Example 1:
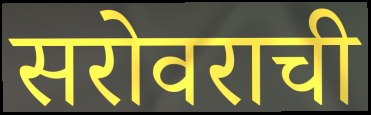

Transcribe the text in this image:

सरोवराची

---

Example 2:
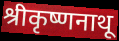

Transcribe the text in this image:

श्रीकृष्णनाथू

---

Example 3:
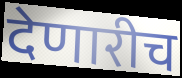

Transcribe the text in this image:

देणारीच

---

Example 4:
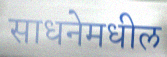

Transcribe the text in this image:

साधनेमधील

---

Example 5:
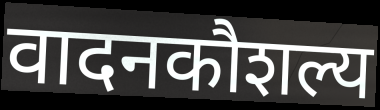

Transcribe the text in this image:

वादनकौशल्य